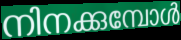
നിനക്കുമ്പോൾ